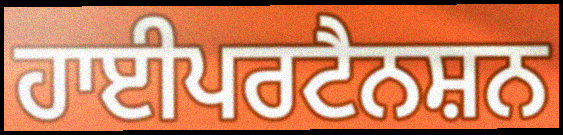
ਹਾਈਪਰਟੈਨਸ਼ਨ